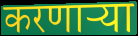
करणाऱ्या